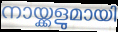
നായ്ക്കളുമായി